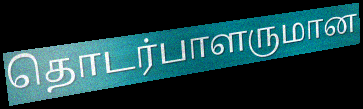
தொடர்பாளருமான